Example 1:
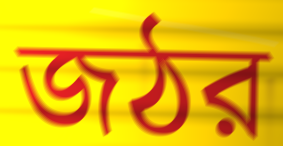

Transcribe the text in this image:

জঠর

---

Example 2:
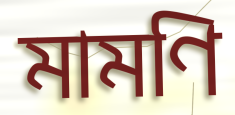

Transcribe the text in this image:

মামণি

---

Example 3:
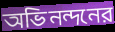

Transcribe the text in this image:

অভিনন্দনের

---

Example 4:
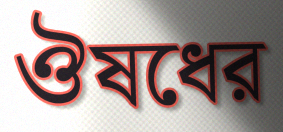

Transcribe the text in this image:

ঔষধের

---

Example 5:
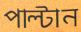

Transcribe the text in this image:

পাল্টান